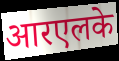
आरएलके